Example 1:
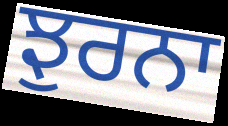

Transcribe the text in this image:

ਝੁਰਨਾ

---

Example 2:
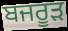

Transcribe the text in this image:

ਬਜਰੂੜ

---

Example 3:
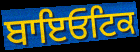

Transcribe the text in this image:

ਬਾਇਓਟਿਕ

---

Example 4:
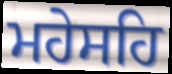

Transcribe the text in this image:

ਮਹੇਸਹਿ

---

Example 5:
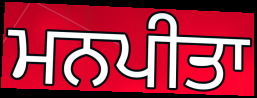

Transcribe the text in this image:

ਮਨਪੀਤਾ